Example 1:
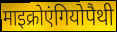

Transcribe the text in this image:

माइक्रोएंगियोपैथी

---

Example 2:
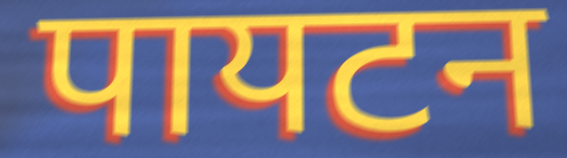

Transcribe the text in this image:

पायटन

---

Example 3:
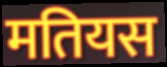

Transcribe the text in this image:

मतियस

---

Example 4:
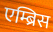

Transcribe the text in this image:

एम्ब्रिस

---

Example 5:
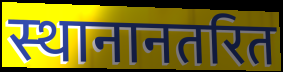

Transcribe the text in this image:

स्थानानतरित